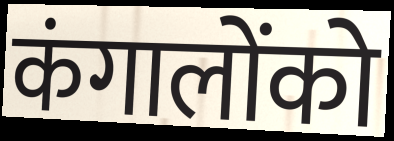
कंगालोंको